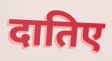
दातिए